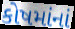
કોષમાંનાં